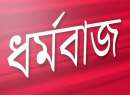
ধর্মবাজ